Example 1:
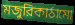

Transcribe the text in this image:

মজুরিকাঠামো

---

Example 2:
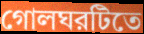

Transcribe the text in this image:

গোলঘরটিতে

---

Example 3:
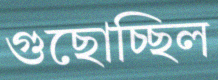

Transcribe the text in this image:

গুছোচ্ছিল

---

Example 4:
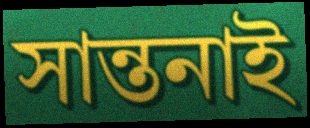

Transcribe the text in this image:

সান্তনাই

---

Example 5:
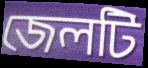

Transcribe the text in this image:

জেলটি